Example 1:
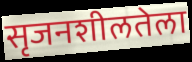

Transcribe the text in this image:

सृजनशीलतेला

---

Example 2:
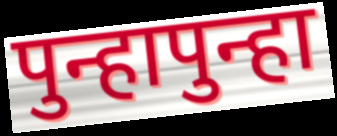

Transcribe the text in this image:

पुन्हापुन्हा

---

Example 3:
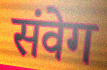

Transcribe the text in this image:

संवेग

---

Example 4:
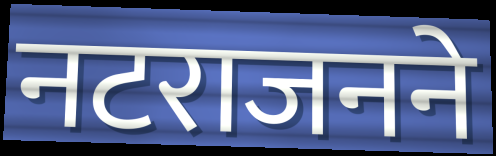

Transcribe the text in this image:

नटराजनने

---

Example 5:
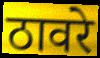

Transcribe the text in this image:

ठावरे